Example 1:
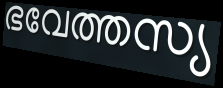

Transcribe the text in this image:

ഭവേത്തസ്യ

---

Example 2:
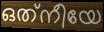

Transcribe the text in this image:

ഒത്‌നീയേ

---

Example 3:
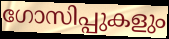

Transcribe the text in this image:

ഗോസിപ്പുകളും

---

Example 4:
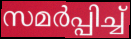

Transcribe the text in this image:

സമർപ്പിച്ച്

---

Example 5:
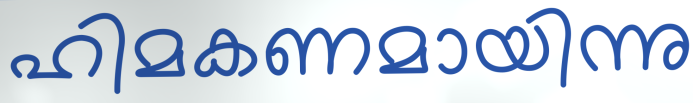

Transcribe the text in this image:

ഹിമകണമായിന്നു